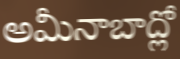
అమీనాబాద్లో